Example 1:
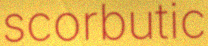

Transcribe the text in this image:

scorbutic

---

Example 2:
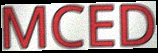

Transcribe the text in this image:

MCED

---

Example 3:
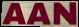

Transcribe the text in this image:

AAN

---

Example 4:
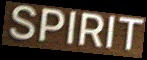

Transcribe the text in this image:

SPIRIT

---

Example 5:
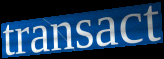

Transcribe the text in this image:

transact